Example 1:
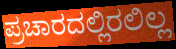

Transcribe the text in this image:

ಪ್ರಚಾರದಲ್ಲಿರಲಿಲ್ಲ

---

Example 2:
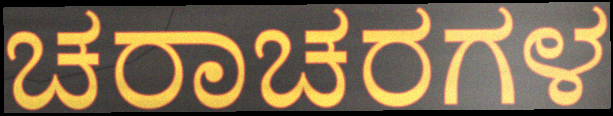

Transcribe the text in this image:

ಚರಾಚರಗಳ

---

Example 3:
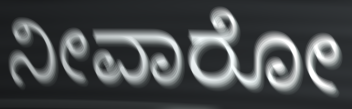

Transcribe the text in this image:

ನೀವಾರೋ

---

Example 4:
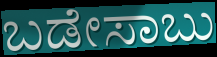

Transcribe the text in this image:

ಬಡೇಸಾಬು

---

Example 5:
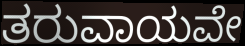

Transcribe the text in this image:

ತರುವಾಯವೇ